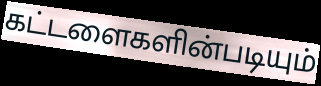
கட்டளைகளின்படியும்